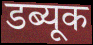
डब्यूक